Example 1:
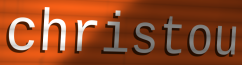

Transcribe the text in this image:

christou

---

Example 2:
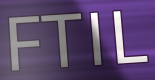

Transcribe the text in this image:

FTIL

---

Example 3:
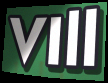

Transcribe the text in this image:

VIll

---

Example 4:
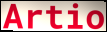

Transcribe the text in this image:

Artio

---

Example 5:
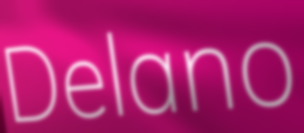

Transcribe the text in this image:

Delano